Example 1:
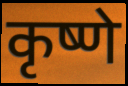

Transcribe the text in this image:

कृष्णे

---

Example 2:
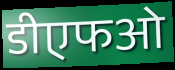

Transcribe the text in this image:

डीएफओ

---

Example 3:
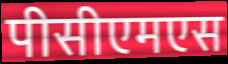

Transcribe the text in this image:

पीसीएमएस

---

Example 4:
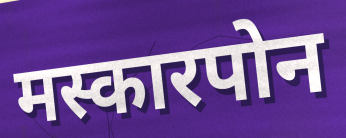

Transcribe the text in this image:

मस्कारपोन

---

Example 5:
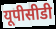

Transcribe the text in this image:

यूपीसीडी